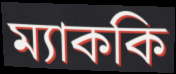
ম্যাককি